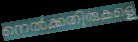
നെൽക്കതിരുകളെ